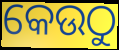
କେଉଠୁ